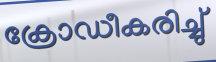
ക്രോഡീകരിച്ചു്